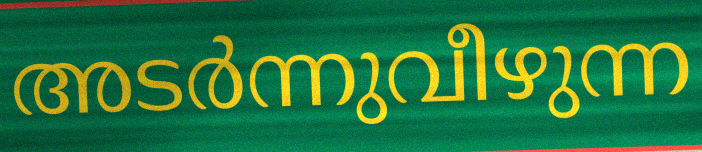
അടർന്നുവീഴുന്ന